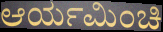
ಆರ್ಯಮಿಂಚಿ